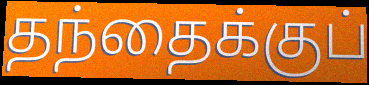
தந்தைக்குப்